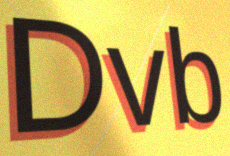
Dvb